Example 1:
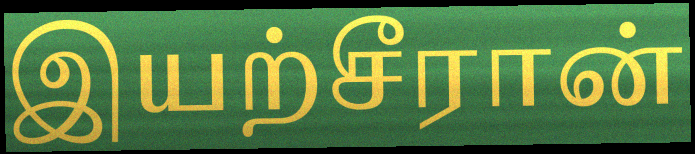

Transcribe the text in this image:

இயற்சீரான்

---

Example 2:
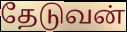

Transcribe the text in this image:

தேடுவன்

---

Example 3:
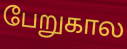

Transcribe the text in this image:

பேறுகால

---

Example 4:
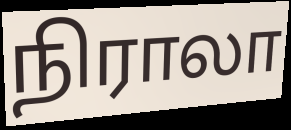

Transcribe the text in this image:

நிராலா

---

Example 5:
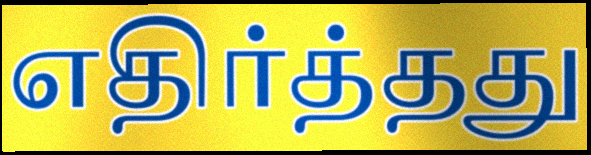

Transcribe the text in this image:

எதிர்த்தது